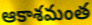
ఆకాశమంత